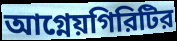
আগ্নেয়গিরিটির